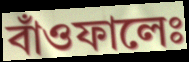
বাঁওফালেঃ